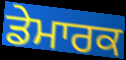
ਡੇਮਾਰਕ